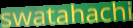
swatahachi